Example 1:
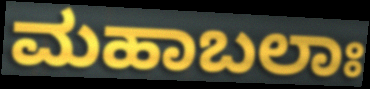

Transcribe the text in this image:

ಮಹಾಬಲಾಃ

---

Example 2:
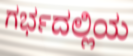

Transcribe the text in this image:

ಗರ್ಭದಲ್ಲಿಯ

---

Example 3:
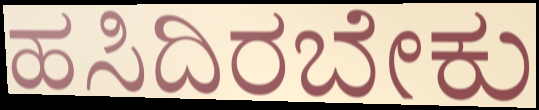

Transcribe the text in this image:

ಹಸಿದಿರಬೇಕು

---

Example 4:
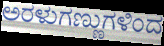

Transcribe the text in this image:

ಅರಳುಗಣ್ಣುಗಳಿಂದ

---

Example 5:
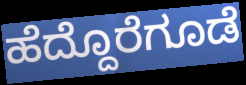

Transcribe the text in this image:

ಹೆದ್ದೊರೆಗೂಡೆ